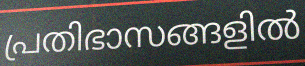
പ്രതിഭാസങ്ങളിൽ